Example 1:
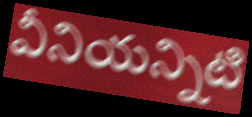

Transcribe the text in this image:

వీనియన్నిటి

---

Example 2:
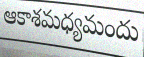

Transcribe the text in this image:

ఆకాశమధ్యమందు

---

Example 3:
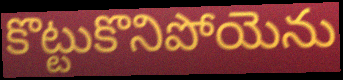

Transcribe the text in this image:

కొట్టుకొనిపోయెను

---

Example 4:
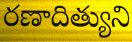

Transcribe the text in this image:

రణాదిత్యుని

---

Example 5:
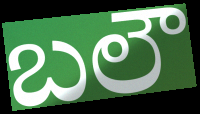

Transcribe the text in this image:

బలౌ